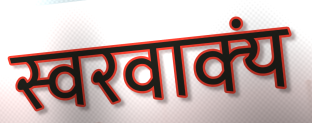
स्वरवाक्यं